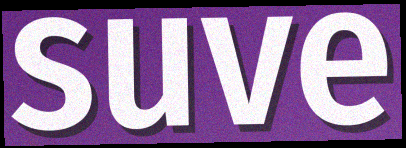
suve